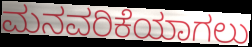
ಮನವರಿಕೆಯಾಗಲು